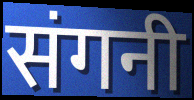
संगनी